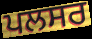
ਪਲਸਰ